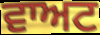
ਵਾਅਟ